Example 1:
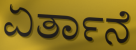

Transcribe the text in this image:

ಏರ್ತಾನೆ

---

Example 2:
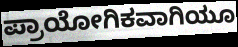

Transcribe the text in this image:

ಪ್ರಾಯೋಗಿಕವಾಗಿಯೂ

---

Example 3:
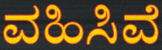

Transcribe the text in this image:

ವಹಿಸಿವೆ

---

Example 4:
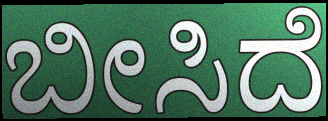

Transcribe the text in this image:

ಬೀಸಿದೆ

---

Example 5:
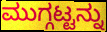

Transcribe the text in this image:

ಮುಗ್ಗಟ್ಟನ್ನು